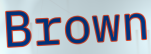
Brown